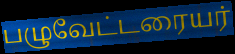
பழுவேட்டரையர்